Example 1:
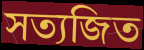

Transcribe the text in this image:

সত্যজিত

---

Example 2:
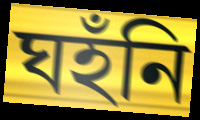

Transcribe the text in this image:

ঘহঁনি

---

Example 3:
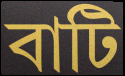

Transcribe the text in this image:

বাটি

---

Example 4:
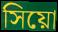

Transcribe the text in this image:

সিয়ো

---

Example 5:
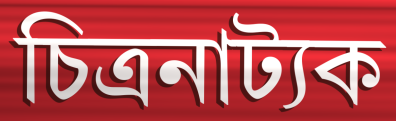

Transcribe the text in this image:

চিত্ৰনাট্যক